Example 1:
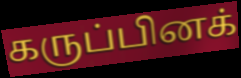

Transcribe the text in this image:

கருப்பினக்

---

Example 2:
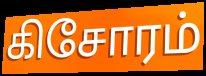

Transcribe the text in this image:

கிசோரம்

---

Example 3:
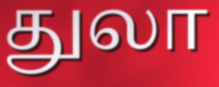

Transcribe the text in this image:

துலா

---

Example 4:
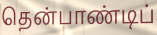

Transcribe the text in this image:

தென்பாண்டிப்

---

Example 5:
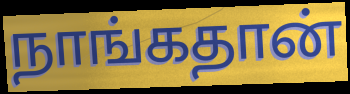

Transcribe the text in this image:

நாங்கதான்